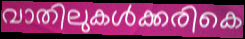
വാതിലുകൾക്കരികെ